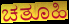
ಚತೂಹಿ